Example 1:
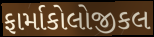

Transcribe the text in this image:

ફાર્માકોલોજીકલ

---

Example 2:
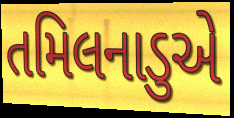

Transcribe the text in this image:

તમિલનાડુએ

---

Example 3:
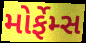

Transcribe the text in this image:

મોર્ફેમ્સ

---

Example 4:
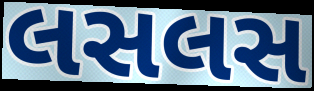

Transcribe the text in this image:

લસલસ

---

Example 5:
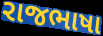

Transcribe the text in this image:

રાજભાષા